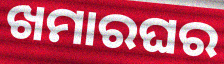
ଖମାରଘର